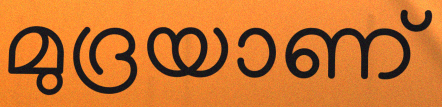
മുദ്രയാണ്